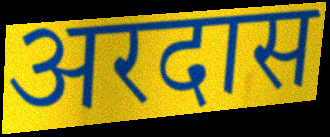
अरदास